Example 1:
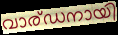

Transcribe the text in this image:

വാര്ഡനായി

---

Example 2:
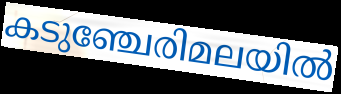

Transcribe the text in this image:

കടുഞ്ചേരിമലയിൽ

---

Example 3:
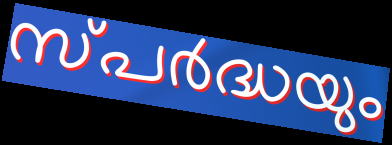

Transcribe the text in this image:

സ്പർദ്ധയും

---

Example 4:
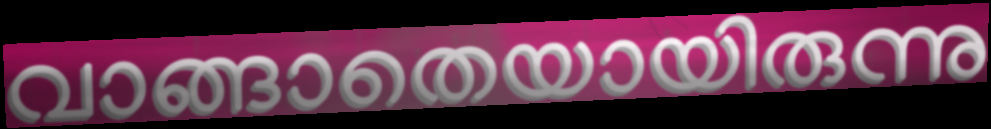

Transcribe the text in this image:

വാങ്ങാതെയായിരുന്നു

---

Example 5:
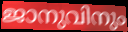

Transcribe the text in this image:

ജാനുവിനും